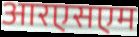
आरएसएम